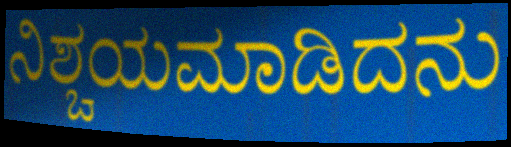
ನಿಶ್ಚಯಮಾಡಿದನು